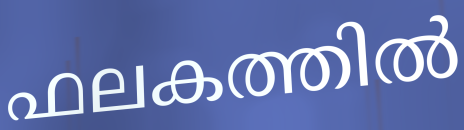
ഫലകത്തിൽ